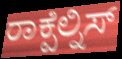
ರಾಕ್ಪೆಲ್ನಿಸ್